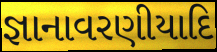
જ્ઞાનાવરણીયાદિ